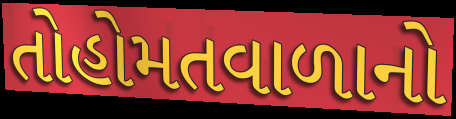
તોહોમતવાળાનો